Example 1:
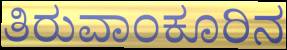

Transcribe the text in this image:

ತಿರುವಾಂಕೂರಿನ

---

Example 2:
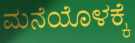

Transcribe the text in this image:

ಮನೆಯೊಳಕ್ಕೆ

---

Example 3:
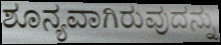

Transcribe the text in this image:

ಶೂನ್ಯವಾಗಿರುವುದನ್ನು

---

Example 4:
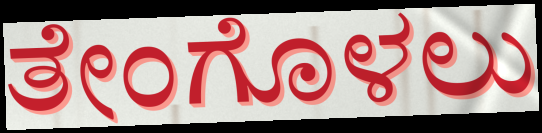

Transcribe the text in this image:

ತೇಂಗೊಳಲು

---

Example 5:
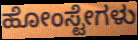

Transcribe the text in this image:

ಹೋಂಸ್ಟೇಗಳು